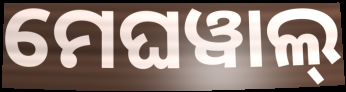
ମେଘୱାଲ୍